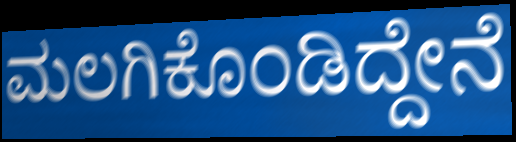
ಮಲಗಿಕೊಂಡಿದ್ದೇನೆ